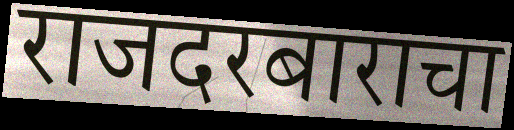
राजदरबाराचा